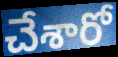
చేశారో